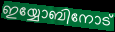
ഇയ്യോബിനോട്